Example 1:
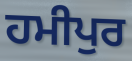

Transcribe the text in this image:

ਹਮੀਪੁਰ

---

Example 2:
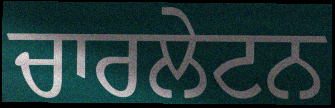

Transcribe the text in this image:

ਚਾਰਲੇਟਨ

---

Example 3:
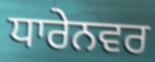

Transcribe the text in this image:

ਧਾਰੇਨਵਰ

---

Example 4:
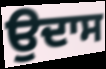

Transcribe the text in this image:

ਉਦਾਸ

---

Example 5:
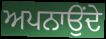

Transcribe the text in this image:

ਅਪਨਾਉਂਦੇ